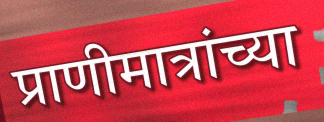
प्राणीमात्रांच्या